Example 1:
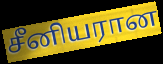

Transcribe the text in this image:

சீனியரான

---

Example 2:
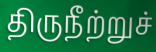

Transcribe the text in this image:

திருநீற்றுச்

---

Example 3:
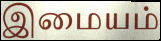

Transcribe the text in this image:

இமையம்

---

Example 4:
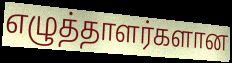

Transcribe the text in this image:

எழுத்தாளர்களான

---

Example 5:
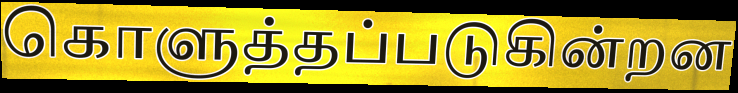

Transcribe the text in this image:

கொளுத்தப்படுகின்றன